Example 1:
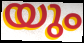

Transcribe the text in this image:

യും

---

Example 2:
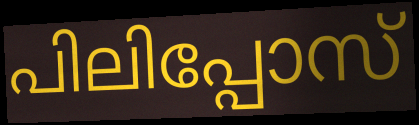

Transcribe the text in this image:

പിലിപ്പോസ്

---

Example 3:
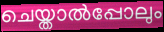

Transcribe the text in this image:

ചെയ്താൽപ്പോലും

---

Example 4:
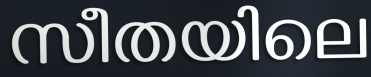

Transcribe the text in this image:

സീതയിലെ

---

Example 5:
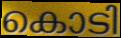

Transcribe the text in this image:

കൊടി